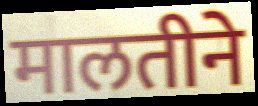
मालतीने